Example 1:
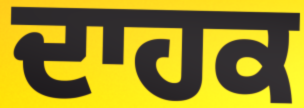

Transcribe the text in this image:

ਦਾਹਕ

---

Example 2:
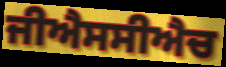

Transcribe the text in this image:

ਜੀਐਸਸੀਐਚ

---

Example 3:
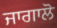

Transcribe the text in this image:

ਜਾਗਾਲੋ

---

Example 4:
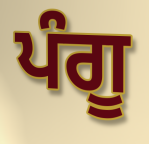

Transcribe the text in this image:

ਪੰਗੂ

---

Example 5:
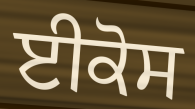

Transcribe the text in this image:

ਈਕੋਸ